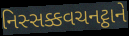
નિસ્સક્કવચનટ્ઠાને